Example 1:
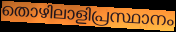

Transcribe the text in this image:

തൊഴിലാളിപ്രസ്ഥാനം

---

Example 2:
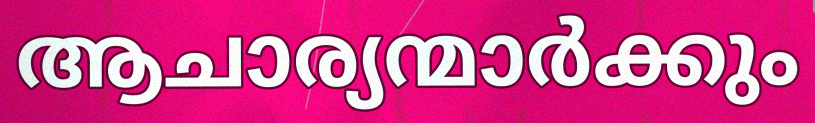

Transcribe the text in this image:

ആചാര്യന്മാർക്കും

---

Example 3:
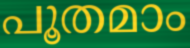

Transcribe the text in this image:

പൂതമാം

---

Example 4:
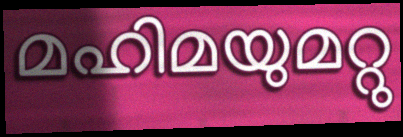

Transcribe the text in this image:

മഹിമയുമറ്റു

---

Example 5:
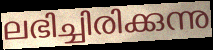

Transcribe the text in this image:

ലഭിച്ചിരിക്കുന്നു